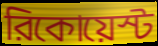
রিকোয়েস্ট